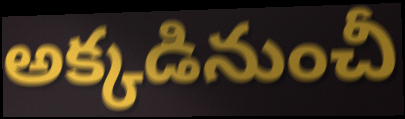
అక్కడినుంచీ